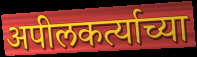
अपीलकर्त्याच्या